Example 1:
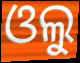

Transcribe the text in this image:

ଓଲୁ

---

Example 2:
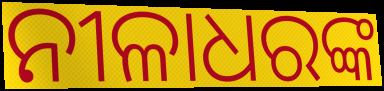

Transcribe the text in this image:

ନୀଳାଧରଙ୍କ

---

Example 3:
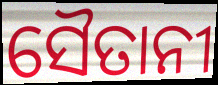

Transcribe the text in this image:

ସୈତାନୀ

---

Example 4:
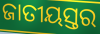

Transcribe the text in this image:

ଜାତୀୟସ୍ତର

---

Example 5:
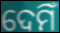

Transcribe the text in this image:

ଦେମିଁ